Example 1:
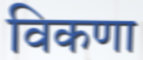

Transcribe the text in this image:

विकणा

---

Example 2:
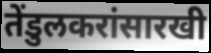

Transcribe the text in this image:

तेंडुलकरांसारखी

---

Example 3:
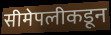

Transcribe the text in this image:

सीमेपलीकडून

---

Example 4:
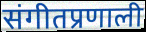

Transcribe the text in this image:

संगीतप्रणाली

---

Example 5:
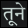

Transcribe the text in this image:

तूने